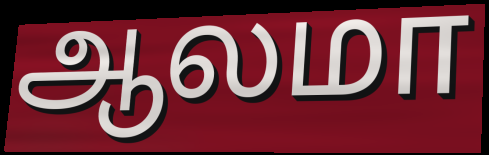
ஆலமா